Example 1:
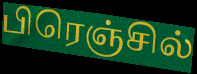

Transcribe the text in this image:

பிரெஞ்சில்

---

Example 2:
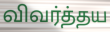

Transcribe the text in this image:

விவர்த்தய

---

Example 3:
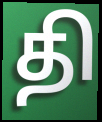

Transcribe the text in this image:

தி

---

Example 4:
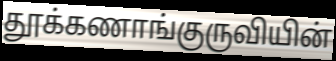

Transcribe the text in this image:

தூக்கணாங்குருவியின்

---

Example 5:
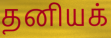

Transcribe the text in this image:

தனியக்